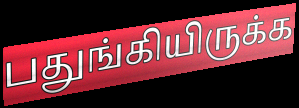
பதுங்கியிருக்க